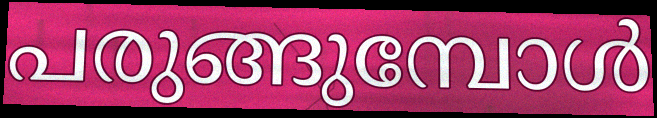
പരുങ്ങുമ്പോൾ